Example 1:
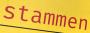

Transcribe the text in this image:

stammen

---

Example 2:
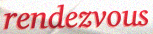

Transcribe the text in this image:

rendezvous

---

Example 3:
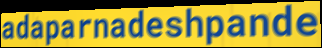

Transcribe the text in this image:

adaparnadeshpande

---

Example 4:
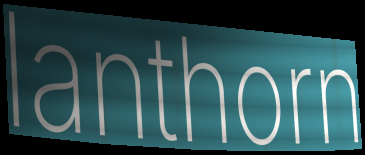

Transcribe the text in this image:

lanthorn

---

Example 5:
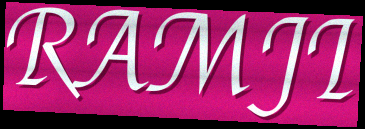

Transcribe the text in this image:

RAMJI